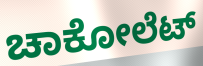
ಚಾಕೋಲೆಟ್